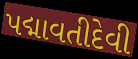
પદ્માવતીદેવી